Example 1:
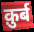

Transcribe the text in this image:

क़ुर्ब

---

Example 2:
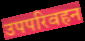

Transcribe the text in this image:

उपपरिवहन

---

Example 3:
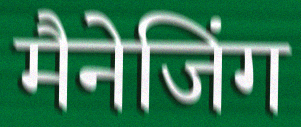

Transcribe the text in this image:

मैनेजिंग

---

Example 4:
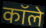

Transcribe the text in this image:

कॉले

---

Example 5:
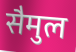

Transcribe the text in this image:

सैमुल